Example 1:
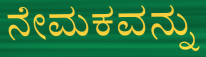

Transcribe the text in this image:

ನೇಮಕವನ್ನು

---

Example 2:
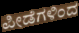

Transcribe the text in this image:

ಪೀಡೆಗಳಿಂದ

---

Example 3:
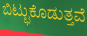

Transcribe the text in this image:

ಬಿಟ್ಟುಕೊಡುತ್ತವೆ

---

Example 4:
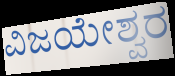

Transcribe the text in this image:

ವಿಜಯೇಶ್ವರ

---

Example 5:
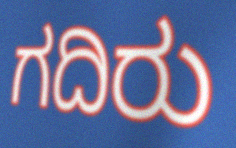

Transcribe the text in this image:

ಗದಿರು